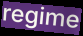
regime